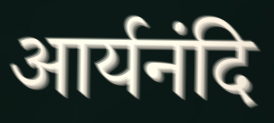
आर्यनंदि